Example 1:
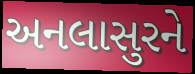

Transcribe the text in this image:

અનલાસુરને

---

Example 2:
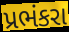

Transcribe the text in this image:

પ્રભંકરા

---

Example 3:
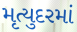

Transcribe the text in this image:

મૃત્યુદરમાં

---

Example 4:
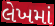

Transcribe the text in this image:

લેખમાં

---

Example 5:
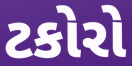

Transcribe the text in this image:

ટકોરો